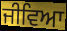
ਜੀਵਿਆ